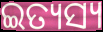
ଇତ୍ୟସ୍ୟ